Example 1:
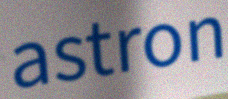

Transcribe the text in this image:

astron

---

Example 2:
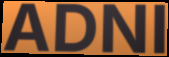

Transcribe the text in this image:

ADNI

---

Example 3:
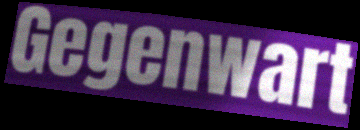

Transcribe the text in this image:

Gegenwart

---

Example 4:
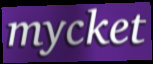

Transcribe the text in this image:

mycket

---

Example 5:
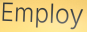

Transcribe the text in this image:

Employ